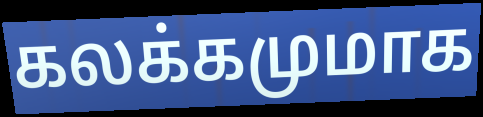
கலக்கமுமாக